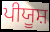
ਪੀਯੂਸ਼